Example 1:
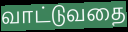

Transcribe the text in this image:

வாட்டுவதை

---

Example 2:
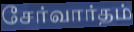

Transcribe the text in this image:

சேர்வார்தம்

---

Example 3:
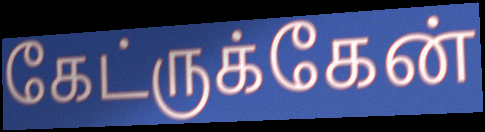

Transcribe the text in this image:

கேட்ருக்கேன்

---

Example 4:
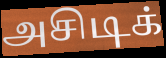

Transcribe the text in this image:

அசிடிக்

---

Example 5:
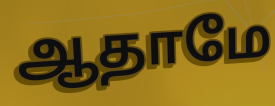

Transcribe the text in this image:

ஆதாமே